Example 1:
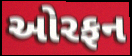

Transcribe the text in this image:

ઓરફન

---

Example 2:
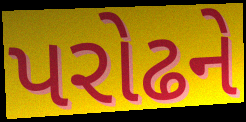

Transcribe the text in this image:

પરોઢને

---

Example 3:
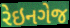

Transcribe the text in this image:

રેઇનગેજ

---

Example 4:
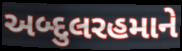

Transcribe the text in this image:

અબ્દુલરહમાને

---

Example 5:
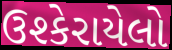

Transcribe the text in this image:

ઉશ્કેરાયેલો